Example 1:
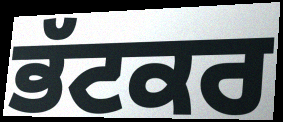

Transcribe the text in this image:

ਭੱਟਕਰ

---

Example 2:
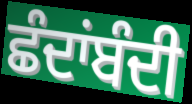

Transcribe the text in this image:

ਛੰਦਾਂਬੰਦੀ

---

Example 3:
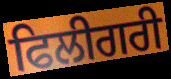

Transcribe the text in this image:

ਫਿਲੀਗਰੀ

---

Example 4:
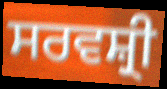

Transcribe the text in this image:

ਸਰਵਸ਼੍ਰੀ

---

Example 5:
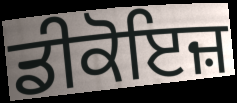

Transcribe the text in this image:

ਡੀਕੋਇਜ਼